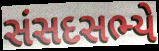
સંસદસભ્યે